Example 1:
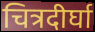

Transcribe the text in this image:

चित्रदीर्घा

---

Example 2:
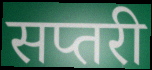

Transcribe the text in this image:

सप्तरी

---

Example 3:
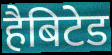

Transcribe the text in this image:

हैबिटेड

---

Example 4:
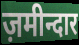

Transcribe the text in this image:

ज़मीन्दार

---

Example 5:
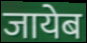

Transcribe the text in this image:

जायेब